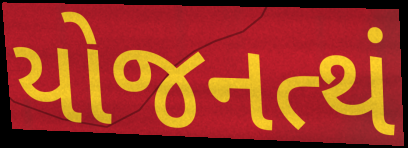
યોજનત્થં